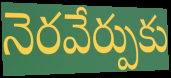
నెరవేర్పుకు